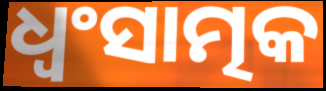
ଧ୍ଵଂସାତ୍ମକ